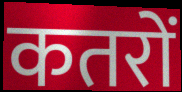
कतरों